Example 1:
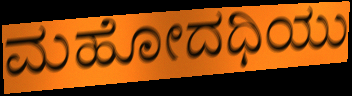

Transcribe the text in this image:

ಮಹೋದಧಿಯು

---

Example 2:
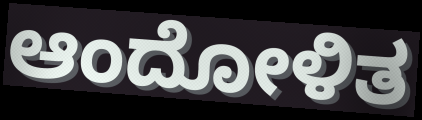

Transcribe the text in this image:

ಆಂದೋಳಿತ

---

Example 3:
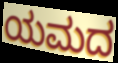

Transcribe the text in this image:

ಯಮದ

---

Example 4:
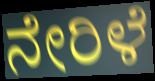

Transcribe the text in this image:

ನೇರಿಳೆ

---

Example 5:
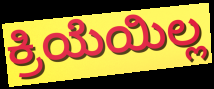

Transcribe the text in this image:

ಕ್ರಿಯೆಯಿಲ್ಲ